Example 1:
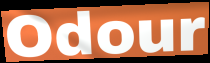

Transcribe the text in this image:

Odour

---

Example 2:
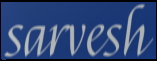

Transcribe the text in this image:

sarvesh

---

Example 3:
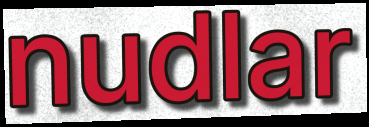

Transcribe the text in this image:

nudlar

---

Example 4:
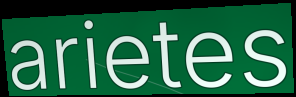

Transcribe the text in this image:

arietes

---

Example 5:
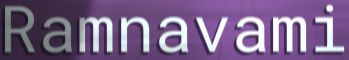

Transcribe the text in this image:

Ramnavami